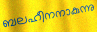
ബലഹീനനാകുന്നു